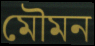
মৌমন